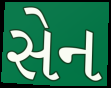
સેન